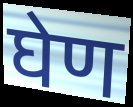
घेण